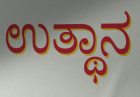
ಉತ್ಥಾನ